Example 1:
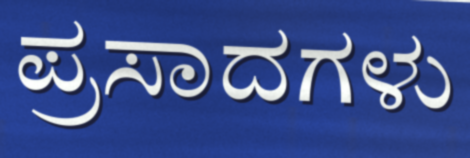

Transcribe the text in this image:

ಪ್ರಸಾದಗಳು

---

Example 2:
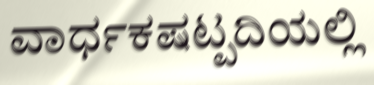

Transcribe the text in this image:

ವಾರ್ಧಕಷಟ್ಪದಿಯಲ್ಲಿ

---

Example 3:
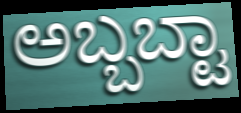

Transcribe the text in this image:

ಅಬ್ಬಬ್ಟಾ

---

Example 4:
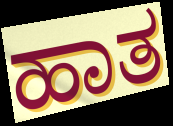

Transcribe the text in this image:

ಹಾತ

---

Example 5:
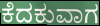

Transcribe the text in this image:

ಕೆದಕುವಾಗ